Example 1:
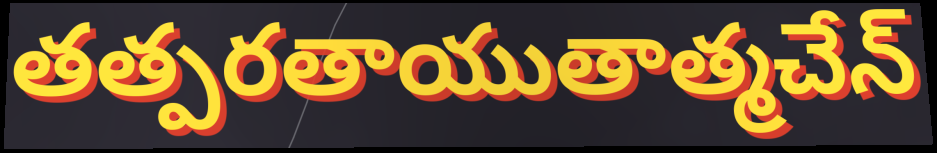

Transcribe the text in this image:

తత్పరతాయుతాత్మచేన్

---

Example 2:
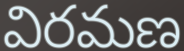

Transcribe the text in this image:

విరమణ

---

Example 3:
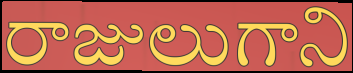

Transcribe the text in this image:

రాజులుగాని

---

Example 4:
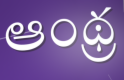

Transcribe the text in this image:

ఆంథ్ర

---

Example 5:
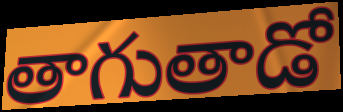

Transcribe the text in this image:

తాగుతాడో